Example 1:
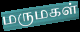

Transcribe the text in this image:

மருமகள்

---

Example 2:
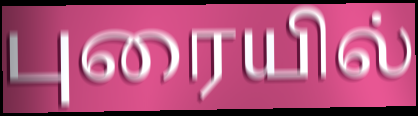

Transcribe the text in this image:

புரையில்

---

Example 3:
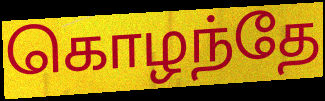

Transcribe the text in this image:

கொழந்தே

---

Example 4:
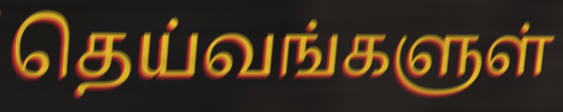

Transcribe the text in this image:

தெய்வங்களுள்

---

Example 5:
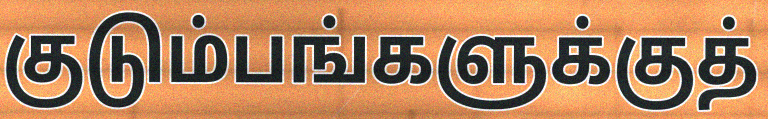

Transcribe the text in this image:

குடும்பங்களுக்குத்